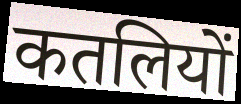
कतलियों